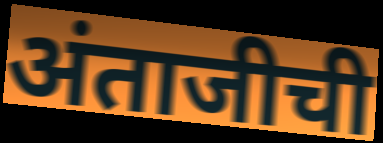
अंताजीची